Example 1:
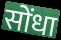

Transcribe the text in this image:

सोंधा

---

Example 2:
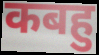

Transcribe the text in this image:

कबहु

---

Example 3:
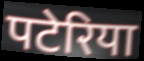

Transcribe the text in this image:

पटेरिया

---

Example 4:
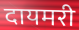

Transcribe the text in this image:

दायमरी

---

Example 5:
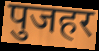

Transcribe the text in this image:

पुजहर